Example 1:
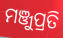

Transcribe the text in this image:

ମଞ୍ଜୁପ୍ରତି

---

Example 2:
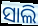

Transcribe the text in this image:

ସାଲି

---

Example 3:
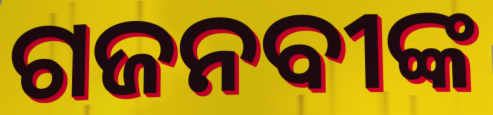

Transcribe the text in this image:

ଗଜନବୀଙ୍କ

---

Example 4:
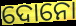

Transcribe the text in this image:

ଦୋନୋ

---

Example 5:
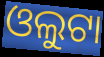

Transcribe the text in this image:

ଓଲୁଟା